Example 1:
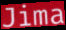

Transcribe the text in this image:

Jima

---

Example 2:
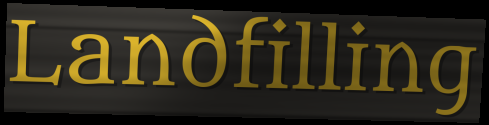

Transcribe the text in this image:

Landfilling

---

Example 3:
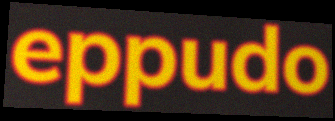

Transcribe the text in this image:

eppudo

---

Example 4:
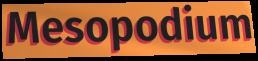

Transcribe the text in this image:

Mesopodium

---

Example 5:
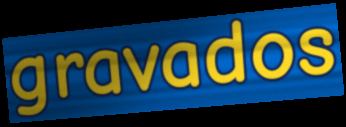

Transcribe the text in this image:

gravados